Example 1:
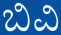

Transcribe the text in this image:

ಬಿವಿ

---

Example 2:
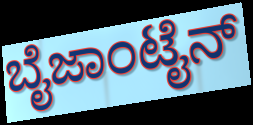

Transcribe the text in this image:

ಬೈಜಾಂಟೈನ್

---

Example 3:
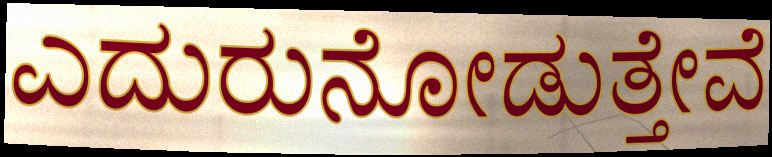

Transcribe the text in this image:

ಎದುರುನೋಡುತ್ತೇವೆ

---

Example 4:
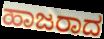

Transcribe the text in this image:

ಹಾಜರಾದ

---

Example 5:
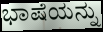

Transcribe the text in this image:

ಭಾಷೆಯನ್ನು